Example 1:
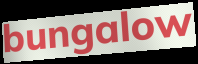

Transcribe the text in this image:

bungalow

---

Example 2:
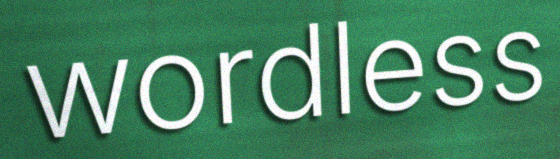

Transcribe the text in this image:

wordless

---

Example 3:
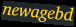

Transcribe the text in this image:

newagebd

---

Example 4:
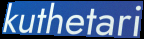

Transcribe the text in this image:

kuthetari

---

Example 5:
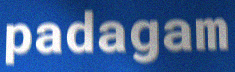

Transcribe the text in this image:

padagam